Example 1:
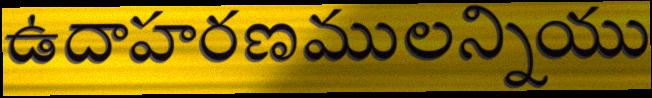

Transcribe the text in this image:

ఉదాహరణములన్నియు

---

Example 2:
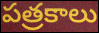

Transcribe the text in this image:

పత్రకాలు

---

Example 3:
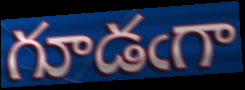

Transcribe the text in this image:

గూడఁగా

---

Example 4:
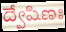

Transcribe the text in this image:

ద్వేషిణః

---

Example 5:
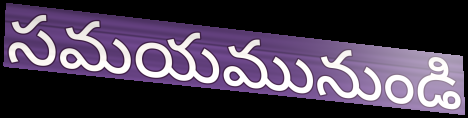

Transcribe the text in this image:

సమయమునుండి